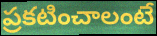
ప్రకటించాలంటే